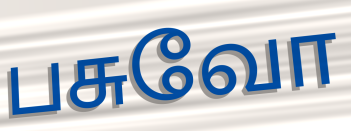
பசுவோ